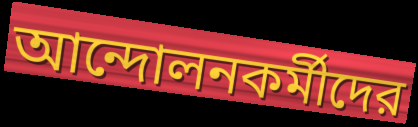
আন্দোলনকর্মীদের